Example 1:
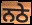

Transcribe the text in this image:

ਨਠੇ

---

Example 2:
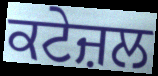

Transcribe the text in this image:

ਕਟੇਜ਼ਲ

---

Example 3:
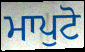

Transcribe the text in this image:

ਮਾਪੁਟੋ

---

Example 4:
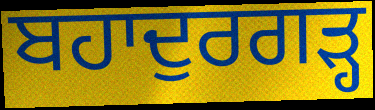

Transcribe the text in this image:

ਬਹਾਦੁਰਗੜ੍ਹ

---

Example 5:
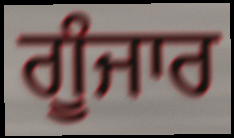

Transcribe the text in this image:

ਗੂੰਜਾਰ